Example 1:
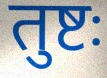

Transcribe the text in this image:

तुष्टः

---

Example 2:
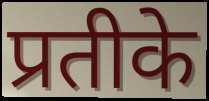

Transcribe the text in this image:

प्रतीके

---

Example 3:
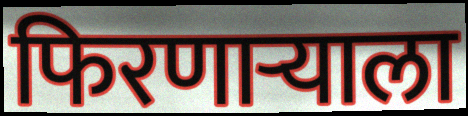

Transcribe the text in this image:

फिरणाऱ्याला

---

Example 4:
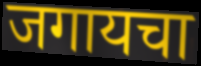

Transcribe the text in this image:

जगायचा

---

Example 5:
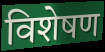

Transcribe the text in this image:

विशेषण